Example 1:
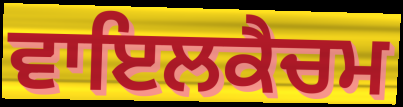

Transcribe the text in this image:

ਵਾਇਲਕੈਚਮ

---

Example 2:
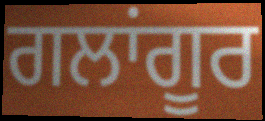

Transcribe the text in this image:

ਗਲਾਂਗੂਰ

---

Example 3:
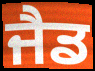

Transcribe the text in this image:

ਜੈਡ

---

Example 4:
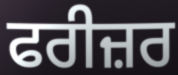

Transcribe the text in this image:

ਫਰੀਜ਼ਰ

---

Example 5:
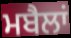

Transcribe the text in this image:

ਮਬੈਲਾਂ